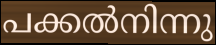
പക്കൽനിന്നു